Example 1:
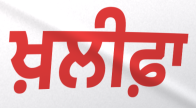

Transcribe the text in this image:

ਖ਼ਲੀਫ਼ਾ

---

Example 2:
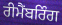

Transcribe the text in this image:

ਰੀਮੈਂਬਰਿੰਗ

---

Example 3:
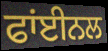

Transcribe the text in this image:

ਫਾਂਈਨਲ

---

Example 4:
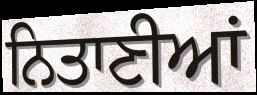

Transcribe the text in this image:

ਨਿਤਾਣੀਆਂ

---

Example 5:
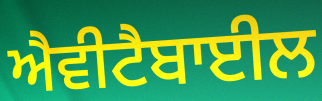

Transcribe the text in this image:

ਐਵੀਟੈਬਾਈਲ